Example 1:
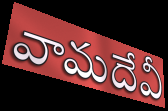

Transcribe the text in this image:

వామదేవీ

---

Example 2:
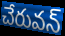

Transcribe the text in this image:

చేరువన్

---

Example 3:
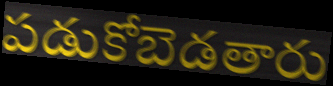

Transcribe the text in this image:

పడుకోబెడతారు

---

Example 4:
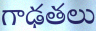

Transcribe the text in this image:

గాఢతలు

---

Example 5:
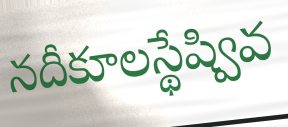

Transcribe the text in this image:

నదీకూలస్థేష్వివ